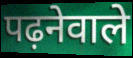
पढ़नेवाले